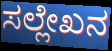
ಸಲ್ಲೇಖನ